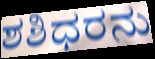
ಶಶಿಧರನು